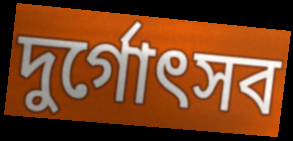
দুর্গোৎসব